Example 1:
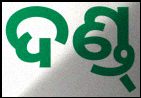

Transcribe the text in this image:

ଦଣ୍ଡ୍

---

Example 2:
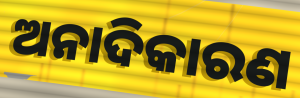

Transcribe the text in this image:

ଅନାଦିକାରଣ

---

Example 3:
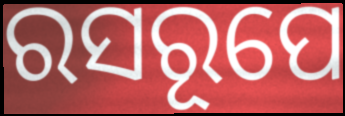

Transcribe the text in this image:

ରସରୂପେ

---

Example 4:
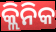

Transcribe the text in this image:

କ୍ଲିନିକ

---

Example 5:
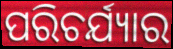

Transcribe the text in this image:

ପରିଚର୍ଯ୍ୟାର